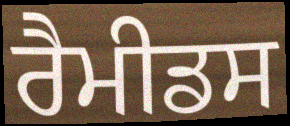
ਰੈਮੀਡਸ